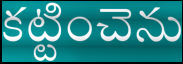
కట్టించెను